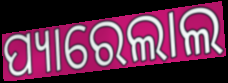
ପ୍ୟାରେଲାଲ